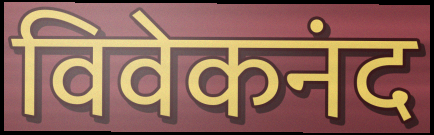
विवेकनंद